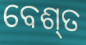
ବେଶ୍‍ତ